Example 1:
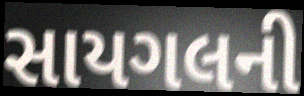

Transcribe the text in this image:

સાયગલની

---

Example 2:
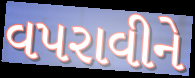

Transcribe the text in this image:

વપરાવીને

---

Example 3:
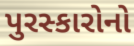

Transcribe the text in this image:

પુરસ્કારોનો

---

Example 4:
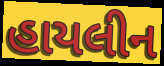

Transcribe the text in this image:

હાયલીન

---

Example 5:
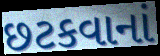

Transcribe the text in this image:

છટકવાનાં